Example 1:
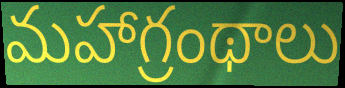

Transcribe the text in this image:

మహాగ్రంథాలు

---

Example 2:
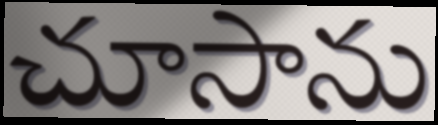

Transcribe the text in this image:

చూసాను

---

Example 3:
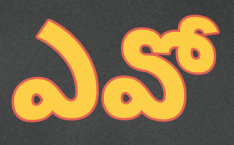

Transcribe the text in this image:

ఎవో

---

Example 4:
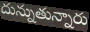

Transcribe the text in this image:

దున్నుతున్నారు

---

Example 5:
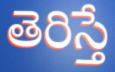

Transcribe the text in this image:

తెరిస్తే